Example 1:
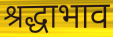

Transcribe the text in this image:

श्रद्धाभाव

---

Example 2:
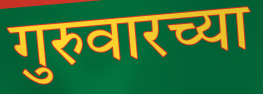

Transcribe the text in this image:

गुरुवारच्या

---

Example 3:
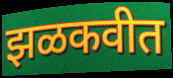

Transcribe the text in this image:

झळकवीत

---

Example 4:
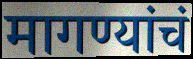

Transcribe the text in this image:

मागण्यांचं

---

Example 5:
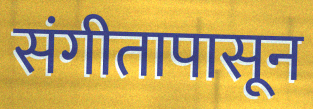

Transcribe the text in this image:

संगीतापासून